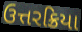
ઉત્તરક્રિયા